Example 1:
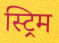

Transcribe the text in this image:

स्ट्रिम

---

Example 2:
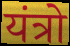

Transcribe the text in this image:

यंत्रो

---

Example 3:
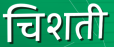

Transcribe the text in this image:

चिशती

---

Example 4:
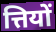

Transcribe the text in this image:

त्तियों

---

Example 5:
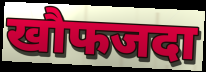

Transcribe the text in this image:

खौफजदा